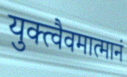
युक्त्वैवमात्मानं